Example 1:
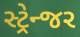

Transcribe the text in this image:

સ્ટ્રેન્જર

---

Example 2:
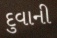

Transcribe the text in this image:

દુવાની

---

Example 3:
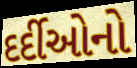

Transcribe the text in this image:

દર્દીઓનો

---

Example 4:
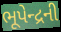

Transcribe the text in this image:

ભૂપેન્દ્રની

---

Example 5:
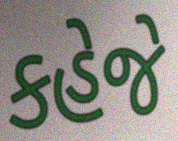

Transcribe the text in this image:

કહેજે